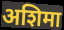
अशिमा